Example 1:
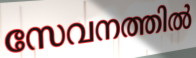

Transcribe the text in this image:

സേവനത്തിൽ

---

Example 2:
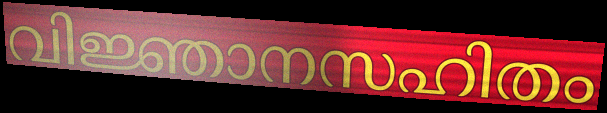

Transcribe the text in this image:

വിജ്ഞാനസഹിതം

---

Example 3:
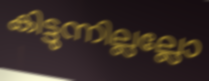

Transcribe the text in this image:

കിട്ടുന്നില്ലല്ലോ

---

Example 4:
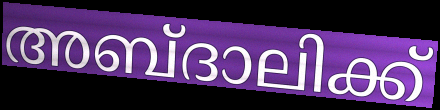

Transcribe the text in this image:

അബ്ദാലിക്ക്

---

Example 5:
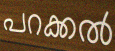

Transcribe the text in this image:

പറക്കൽ